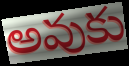
అవుకు